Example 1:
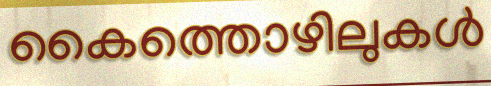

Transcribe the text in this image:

കൈത്തൊഴിലുകൾ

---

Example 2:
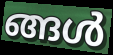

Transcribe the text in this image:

ങ്ങൾ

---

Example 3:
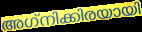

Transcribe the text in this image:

അഗ്‌നിക്കിരയായി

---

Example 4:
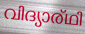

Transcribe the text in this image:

വിദ്യാര്ഥി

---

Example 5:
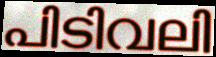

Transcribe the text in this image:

പിടിവലി